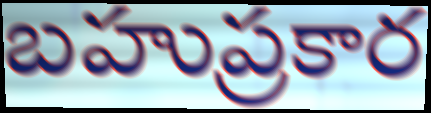
బహుప్రకార